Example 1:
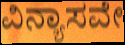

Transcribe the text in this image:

ವಿನ್ಯಾಸವೇ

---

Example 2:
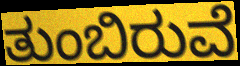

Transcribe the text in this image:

ತುಂಬಿರುವೆ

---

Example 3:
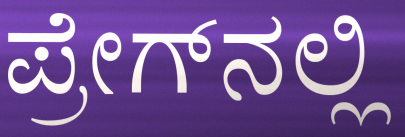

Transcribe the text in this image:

ಪ್ರೇಗ್‌ನಲ್ಲಿ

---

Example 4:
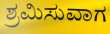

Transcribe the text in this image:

ಶ್ರಮಿಸುವಾಗ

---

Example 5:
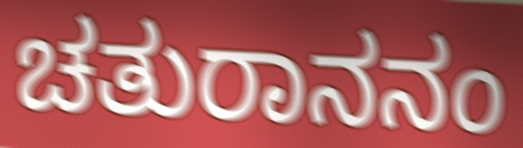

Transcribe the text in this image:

ಚತುರಾನನಂ